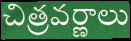
చిత్రవర్ణాలు